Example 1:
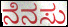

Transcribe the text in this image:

ನೆನಸು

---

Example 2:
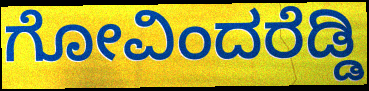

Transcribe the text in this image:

ಗೋವಿಂದರೆಡ್ಡಿ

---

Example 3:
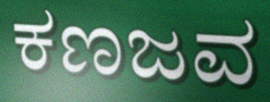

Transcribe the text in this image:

ಕಣಜವ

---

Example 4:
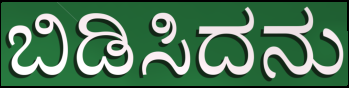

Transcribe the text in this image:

ಬಿಡಿಸಿದನು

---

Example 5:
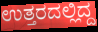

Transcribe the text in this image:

ಉತ್ತರದಲ್ಲಿದ್ದ